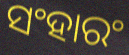
ସଂହାରଂ